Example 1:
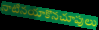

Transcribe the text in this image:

నాటినయాకొనచూపులు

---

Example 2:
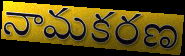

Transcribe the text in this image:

నామకరణ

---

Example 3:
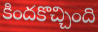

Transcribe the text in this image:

కిందకొచ్చింది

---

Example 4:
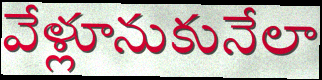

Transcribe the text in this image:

వేళ్లూనుకునేలా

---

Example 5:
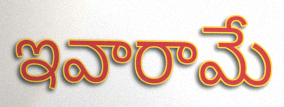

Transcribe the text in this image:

ఇవారామే